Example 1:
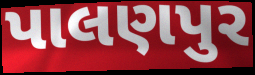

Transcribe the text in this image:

પાલણપુર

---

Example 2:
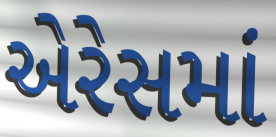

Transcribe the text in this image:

એરેસમાં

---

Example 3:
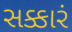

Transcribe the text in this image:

સક્કારં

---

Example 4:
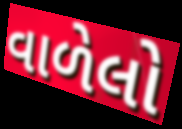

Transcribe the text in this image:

વાળેલો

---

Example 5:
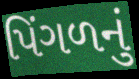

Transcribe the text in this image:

પિંગળનું